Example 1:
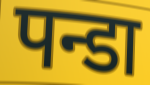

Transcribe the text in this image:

पन्डा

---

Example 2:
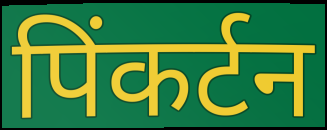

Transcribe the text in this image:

पिंकर्टन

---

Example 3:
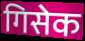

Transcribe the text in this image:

गिसेक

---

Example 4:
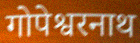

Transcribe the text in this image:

गोपेश्वरनाथ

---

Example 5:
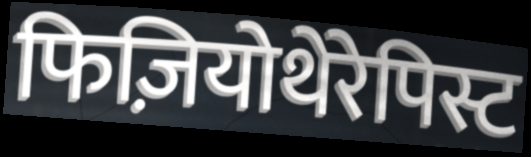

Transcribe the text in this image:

फिज़ियोथेरेपिस्ट